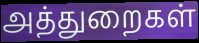
அத்துறைகள்